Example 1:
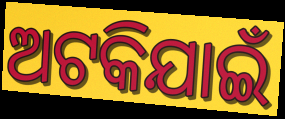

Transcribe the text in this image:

ଅଟକିଯାଇଁ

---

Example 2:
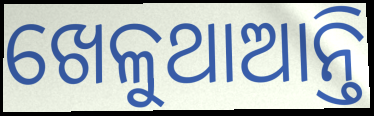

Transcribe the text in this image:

ଖେଳୁଥାଆନ୍ତି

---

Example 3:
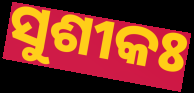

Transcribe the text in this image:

ସୁଶୀକଃ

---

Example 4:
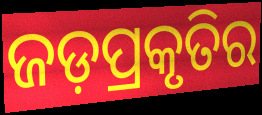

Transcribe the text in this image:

ଜଡ଼ପ୍ରକୃତିର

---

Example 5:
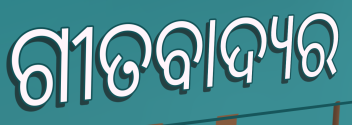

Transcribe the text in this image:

ଗୀତବାଦ୍ୟର